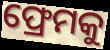
ଫ୍ରେମକୁ